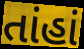
તાંહાં